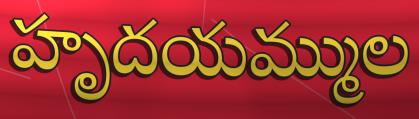
హృదయమ్ముల